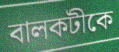
বালকটীকে